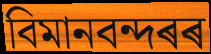
বিমানবন্দৰৰ